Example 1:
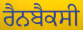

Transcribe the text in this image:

ਰੈਨਬੈਕਸੀ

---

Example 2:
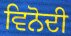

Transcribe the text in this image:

ਵਿਨੋਦੀ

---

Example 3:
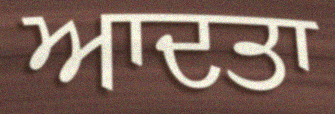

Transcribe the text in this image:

ਆਦਤਾ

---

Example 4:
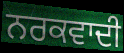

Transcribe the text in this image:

ਨਰਕਵਾਦੀ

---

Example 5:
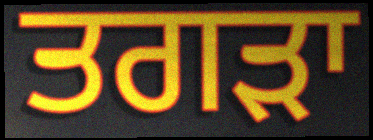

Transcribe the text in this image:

ਤਗੜਾ